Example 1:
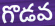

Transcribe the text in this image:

గొడవ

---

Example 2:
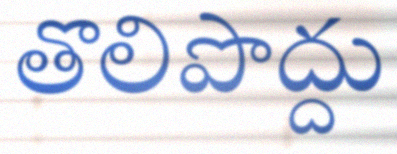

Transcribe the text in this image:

తొలిపొద్దు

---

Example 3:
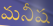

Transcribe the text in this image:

మనీష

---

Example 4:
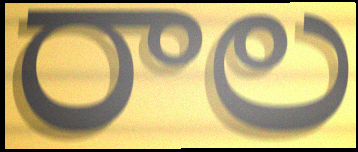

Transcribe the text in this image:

రాల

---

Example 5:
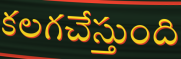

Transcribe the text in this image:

కలగచేస్తుంది